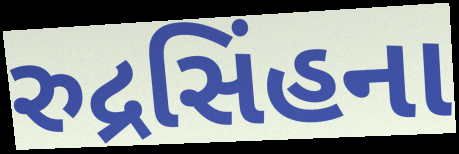
રુદ્રસિંહના